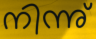
നിന്നു്